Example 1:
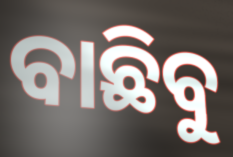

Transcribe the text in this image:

ବାଛିବୁ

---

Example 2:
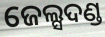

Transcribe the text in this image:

ଜେଲ୍ସଦଣ୍ଡ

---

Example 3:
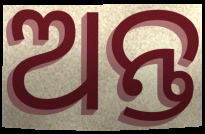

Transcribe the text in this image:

ଅନ୍ତ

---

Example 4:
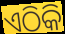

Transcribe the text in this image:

ଏଠିକି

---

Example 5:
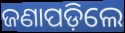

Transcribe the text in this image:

ଜଣାପଡ଼ିଲେ